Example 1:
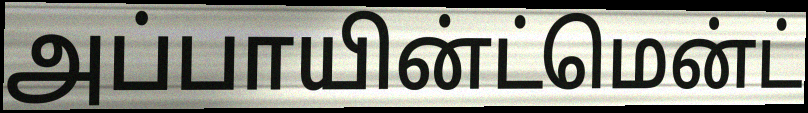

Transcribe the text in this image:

அப்பாயின்ட்மென்ட்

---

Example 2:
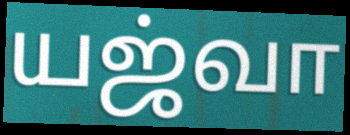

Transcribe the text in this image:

யஜ்வா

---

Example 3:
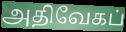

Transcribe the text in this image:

அதிவேகப்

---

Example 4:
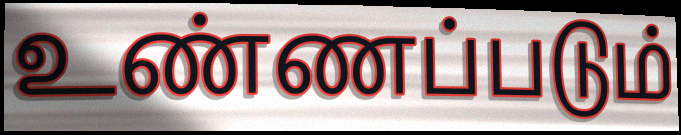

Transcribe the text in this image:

உண்ணப்படும்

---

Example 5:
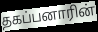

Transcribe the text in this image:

தகப்பனாரின்